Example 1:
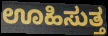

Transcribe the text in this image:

ಊಹಿಸುತ್ತ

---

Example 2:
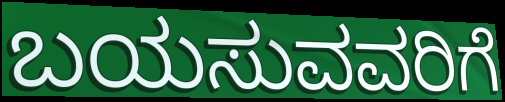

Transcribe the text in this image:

ಬಯಸುವವರಿಗೆ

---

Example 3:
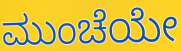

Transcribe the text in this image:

ಮುಂಚೆಯೇ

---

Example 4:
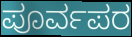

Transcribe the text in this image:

ಪೂರ್ವಪರ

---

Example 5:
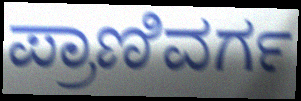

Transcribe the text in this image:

ಪ್ರಾಣಿವರ್ಗ